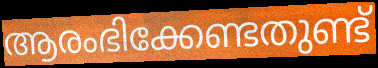
ആരംഭിക്കേണ്ടതുണ്ട്